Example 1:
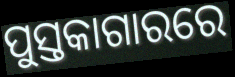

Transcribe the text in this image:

ପୁସ୍ତକାଗାରରେ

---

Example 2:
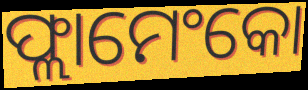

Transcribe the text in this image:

ଫ୍ଲାମେଂକୋ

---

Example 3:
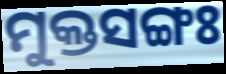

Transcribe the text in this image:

ମୁକ୍ତସଙ୍ଗଃ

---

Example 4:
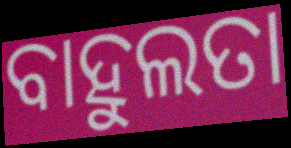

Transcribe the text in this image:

ବାହୁଲତା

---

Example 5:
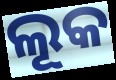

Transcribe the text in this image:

ଲୂକ